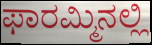
ಫಾರಮ್ಮಿನಲ್ಲಿ